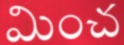
మించ